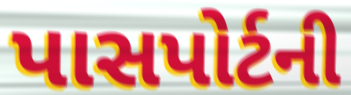
પાસપોર્ટની